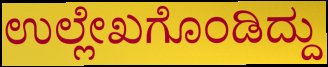
ಉಲ್ಲೇಖಗೊಂಡಿದ್ದು